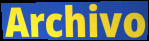
Archivo